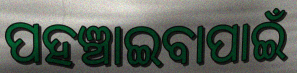
ପହଞ୍ଚାଇବାପାଇଁ